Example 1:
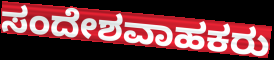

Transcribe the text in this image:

ಸಂದೇಶವಾಹಕರು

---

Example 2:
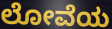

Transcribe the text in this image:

ಲೋವೆಯ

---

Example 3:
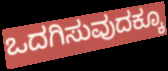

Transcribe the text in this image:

ಒದಗಿಸುವುದಕ್ಕೂ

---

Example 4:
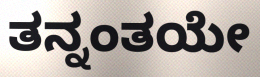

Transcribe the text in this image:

ತನ್ನಂತಯೇ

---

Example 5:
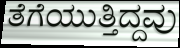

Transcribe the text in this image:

ತೆಗೆಯುತ್ತಿದ್ದವು